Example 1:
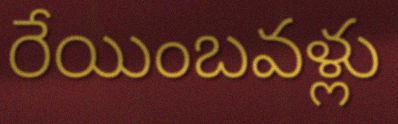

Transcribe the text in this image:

రేయింబవళ్లు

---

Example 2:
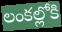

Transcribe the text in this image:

లంకల్లోకి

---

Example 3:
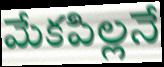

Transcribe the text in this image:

మేకపిల్లనే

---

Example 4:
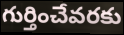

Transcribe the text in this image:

గుర్తించేవరకు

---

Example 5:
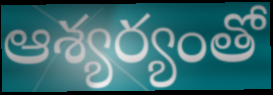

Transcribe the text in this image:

ఆశ్యర్యంతో